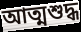
আত্মশুদ্ধ